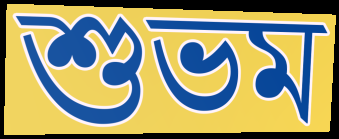
শুভম